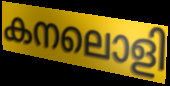
കനലൊളി